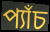
প্যাঁচ